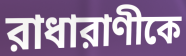
রাধারাণীকে